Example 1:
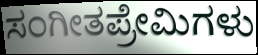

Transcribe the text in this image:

ಸಂಗೀತಪ್ರೇಮಿಗಳು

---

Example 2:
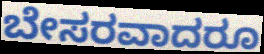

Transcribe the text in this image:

ಬೇಸರವಾದರೂ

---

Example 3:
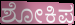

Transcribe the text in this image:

ಶೋಕಿಪ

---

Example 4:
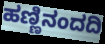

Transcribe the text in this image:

ಹಣ್ಣಿನಂದದಿ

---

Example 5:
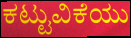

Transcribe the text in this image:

ಕಟ್ಟುವಿಕೆಯು